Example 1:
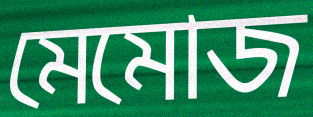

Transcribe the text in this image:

মেমোজ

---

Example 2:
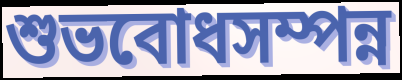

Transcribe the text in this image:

শুভবোধসম্পন্ন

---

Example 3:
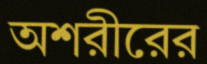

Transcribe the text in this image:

অশরীরের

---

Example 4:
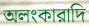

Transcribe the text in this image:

অলংকারাদি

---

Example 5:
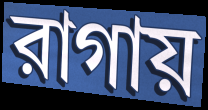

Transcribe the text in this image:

রাগায়